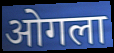
ओगला